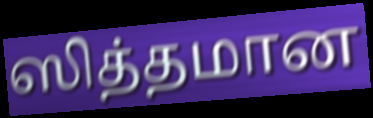
ஸித்தமான